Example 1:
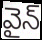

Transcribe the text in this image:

వైన్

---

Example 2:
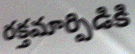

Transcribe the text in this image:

రక్తమార్పిడికి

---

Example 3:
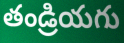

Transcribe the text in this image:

తండ్రియగు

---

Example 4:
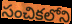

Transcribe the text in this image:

సంచికలోని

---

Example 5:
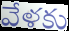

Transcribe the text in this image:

వేళకు